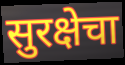
सुरक्षेचा